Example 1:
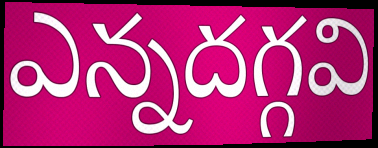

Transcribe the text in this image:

ఎన్నదగ్గవి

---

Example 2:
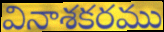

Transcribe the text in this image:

వినాశకరము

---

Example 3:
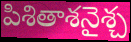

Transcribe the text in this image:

పిశితాశనైశ్చ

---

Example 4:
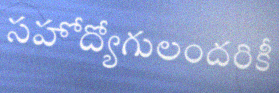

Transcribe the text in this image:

సహోద్యోగులందరికీ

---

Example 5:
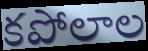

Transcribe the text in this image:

కపోలాల